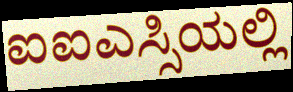
ಐಐಎಸ್ಸಿಯಲ್ಲಿ